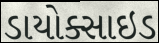
ડાયોક્સાઇડ